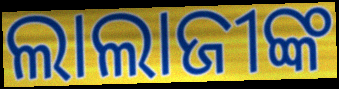
ଲାଲାଜୀଙ୍କ